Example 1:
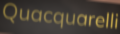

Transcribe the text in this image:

Quacquarelli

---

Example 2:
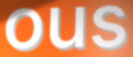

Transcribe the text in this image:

ous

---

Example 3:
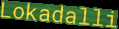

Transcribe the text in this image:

Lokadalli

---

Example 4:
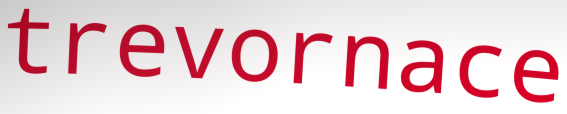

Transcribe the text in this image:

trevornace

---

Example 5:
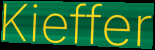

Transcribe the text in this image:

Kieffer